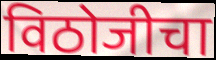
विठोजीचा